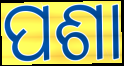
ପଶା